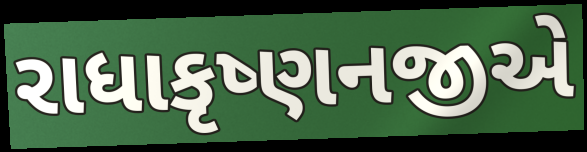
રાધાકૃષ્ણનજીએ